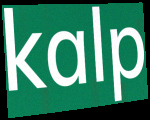
kalp